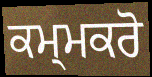
ਕਮ੍ਮਕਰੋ